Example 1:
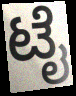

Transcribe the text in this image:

ಟೈ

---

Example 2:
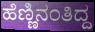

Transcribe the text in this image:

ಹೆಣ್ಣಿನಂತಿದ್ದ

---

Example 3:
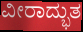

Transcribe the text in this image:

ವೀರಾದ್ಭುತ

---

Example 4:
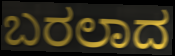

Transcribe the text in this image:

ಬರಲಾದ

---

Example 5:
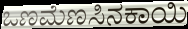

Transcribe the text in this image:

ಒಣಮೆಣಸಿನಕಾಯಿ